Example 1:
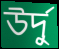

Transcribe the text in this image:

উর্দু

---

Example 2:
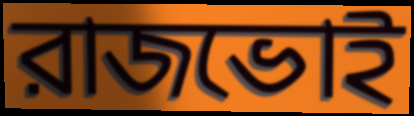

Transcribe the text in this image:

রাজভোই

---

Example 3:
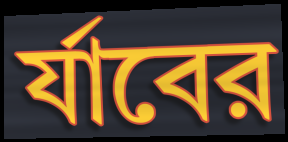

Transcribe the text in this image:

র্যাবের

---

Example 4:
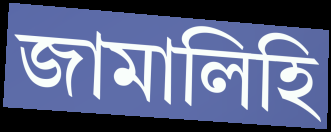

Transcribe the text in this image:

জামালিহি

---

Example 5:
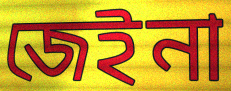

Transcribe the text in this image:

জেইনা